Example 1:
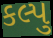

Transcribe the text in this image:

કલ્પુ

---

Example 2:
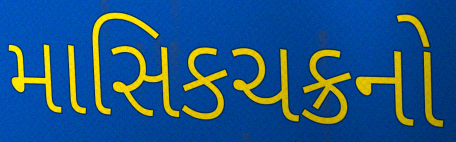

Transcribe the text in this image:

માસિકચક્રનો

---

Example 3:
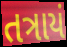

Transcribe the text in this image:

તત્રાયં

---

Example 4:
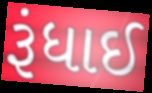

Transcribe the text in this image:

રૂંધાઈ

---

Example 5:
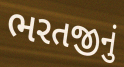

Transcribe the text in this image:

ભરતજીનું